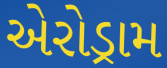
એરોડ્રામ